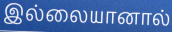
இல்லையானால்